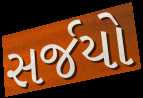
સર્જયો